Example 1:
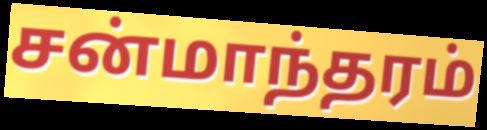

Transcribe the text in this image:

சன்மாந்தரம்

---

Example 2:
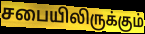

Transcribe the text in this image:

சபையிலிருக்கும்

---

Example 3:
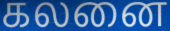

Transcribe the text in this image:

கலனை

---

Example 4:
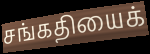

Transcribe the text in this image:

சங்கதியைக்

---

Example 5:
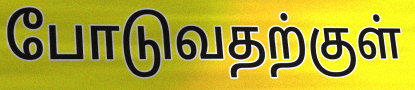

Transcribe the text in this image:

போடுவதற்குள்